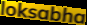
loksabha